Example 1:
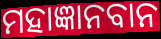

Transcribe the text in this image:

ମହାଜ୍ଞାନବାନ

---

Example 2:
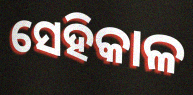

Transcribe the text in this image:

ସେହିକାଳ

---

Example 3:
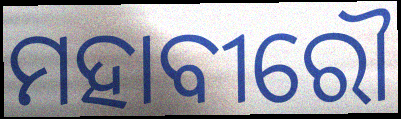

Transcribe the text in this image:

ମହାବୀରୌ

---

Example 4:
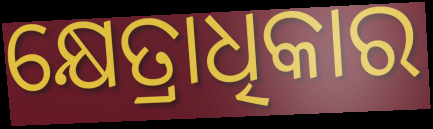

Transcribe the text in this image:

କ୍ଷେତ୍ରାଧିକାର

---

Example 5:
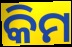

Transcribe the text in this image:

କିମ